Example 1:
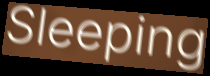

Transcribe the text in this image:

Sleeping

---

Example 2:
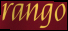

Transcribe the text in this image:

rango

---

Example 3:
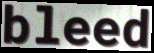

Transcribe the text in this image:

bleed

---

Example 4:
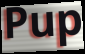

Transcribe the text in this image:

Pup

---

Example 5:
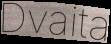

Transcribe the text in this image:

Dvaita